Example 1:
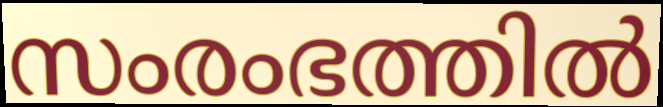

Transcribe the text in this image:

സംരംഭത്തിൽ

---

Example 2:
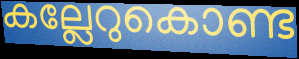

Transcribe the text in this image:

കല്ലേറുകൊണ്ട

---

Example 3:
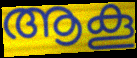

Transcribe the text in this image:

ആകൂ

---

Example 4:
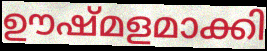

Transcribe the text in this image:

ഊഷ്മളമാക്കി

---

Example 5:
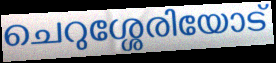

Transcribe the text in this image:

ചെറുശ്ശേരിയോട്